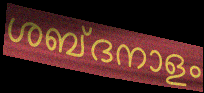
ശബ്ദനാളം